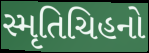
સ્મૃતિચિહનો